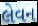
લેવન